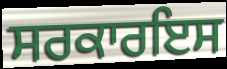
ਸਰਕਾਰਇਸ